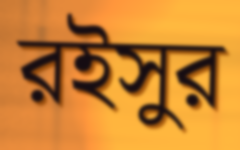
রইসুর